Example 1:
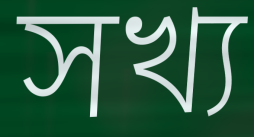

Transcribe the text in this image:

সখ্য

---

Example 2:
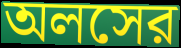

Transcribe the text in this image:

অলসের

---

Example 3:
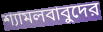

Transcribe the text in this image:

শ্যামলবাবুদের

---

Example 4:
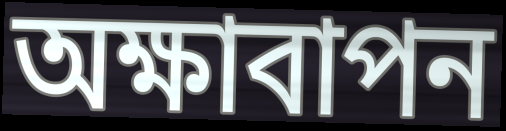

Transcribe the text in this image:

অক্ষাবাপন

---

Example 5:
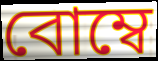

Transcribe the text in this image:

বোম্বে